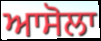
ਆਸੋਲਾ